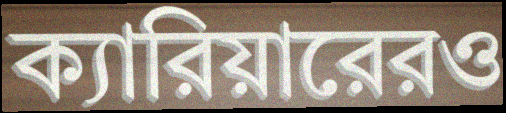
ক্যারিয়ারেরও